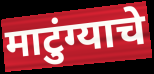
माटुंग्याचे